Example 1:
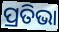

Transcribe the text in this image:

ପ୍ରତିଭା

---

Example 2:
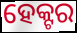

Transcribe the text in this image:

ହେକ୍ଟର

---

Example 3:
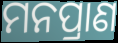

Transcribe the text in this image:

ମନପ୍ରାଣ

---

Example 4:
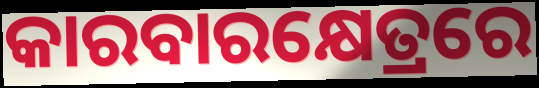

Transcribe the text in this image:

କାରବାରକ୍ଷେତ୍ରରେ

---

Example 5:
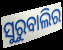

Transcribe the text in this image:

ସୁରୁବାଲିର